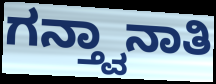
ಗನ್ತ್ವಾನಾತಿ